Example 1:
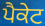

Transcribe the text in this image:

ਪੈਕੇਟ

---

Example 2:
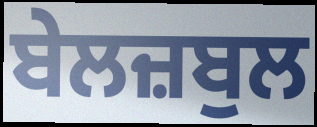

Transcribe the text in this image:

ਬੇਲਜ਼ਬੁਲ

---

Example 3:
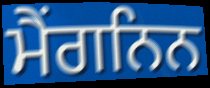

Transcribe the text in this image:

ਮੈਂਗਨਿਨ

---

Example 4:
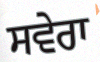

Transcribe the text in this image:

ਸਵੇਰਾ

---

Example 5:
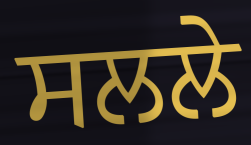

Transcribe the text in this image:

ਸਲਲੇ